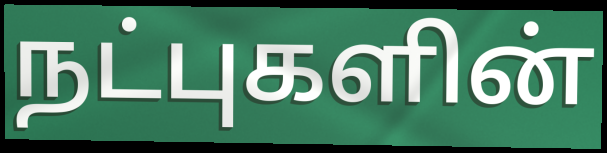
நட்புகளின்